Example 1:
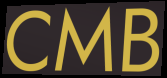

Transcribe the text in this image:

CMB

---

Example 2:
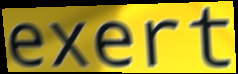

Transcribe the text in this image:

exert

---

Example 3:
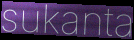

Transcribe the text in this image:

sukanta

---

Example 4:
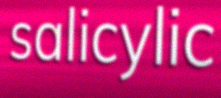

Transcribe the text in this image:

salicylic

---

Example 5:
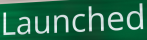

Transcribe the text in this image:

Launched